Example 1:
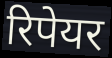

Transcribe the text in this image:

रिपेयर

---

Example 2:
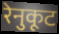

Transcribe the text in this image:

रेनुकूट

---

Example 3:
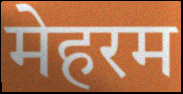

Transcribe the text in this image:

मेहरम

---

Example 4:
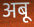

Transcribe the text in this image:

अबू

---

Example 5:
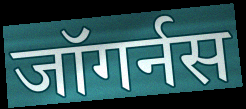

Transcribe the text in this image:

जॉगर्नस